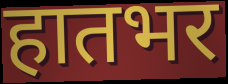
हातभर